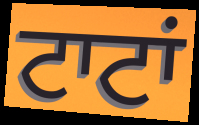
ਟਾਟਾਂ